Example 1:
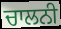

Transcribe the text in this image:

ਚਾਲਨੀ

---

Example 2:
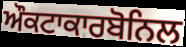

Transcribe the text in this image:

ਔਕਟਾਕਾਰਬੋਨਿਲ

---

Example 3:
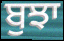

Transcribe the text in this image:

ਬੁਝਾ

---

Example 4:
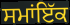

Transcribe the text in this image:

ਸਮਾਂਇੱਕ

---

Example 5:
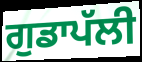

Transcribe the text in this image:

ਗੁਡਾਪੱਲੀ